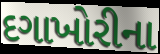
દગાખોરીના